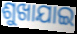
ଶୁଖାଯାଇ